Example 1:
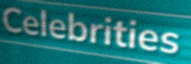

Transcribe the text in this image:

Celebrities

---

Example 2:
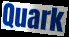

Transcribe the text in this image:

Quark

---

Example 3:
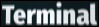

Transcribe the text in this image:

Terminal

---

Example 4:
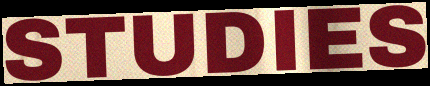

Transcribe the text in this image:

STUDIES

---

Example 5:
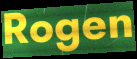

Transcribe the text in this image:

Rogen